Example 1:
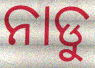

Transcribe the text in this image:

ନାଡୁ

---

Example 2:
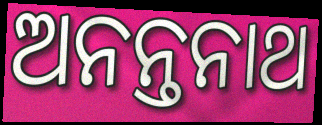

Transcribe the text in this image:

ଅନନ୍ତନାଥ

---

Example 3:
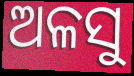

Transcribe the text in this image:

ଅଳସୁ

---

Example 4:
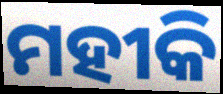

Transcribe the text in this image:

ମହୀକି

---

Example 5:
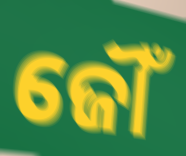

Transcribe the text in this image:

ଜୌଁ